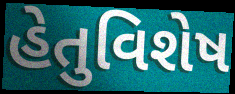
હેતુવિશેષ